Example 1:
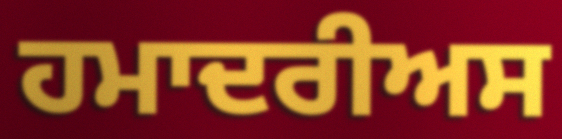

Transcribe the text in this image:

ਹਮਾਦਰੀਅਸ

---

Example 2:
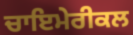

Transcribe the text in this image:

ਚਾਇਮੇਰੀਕਲ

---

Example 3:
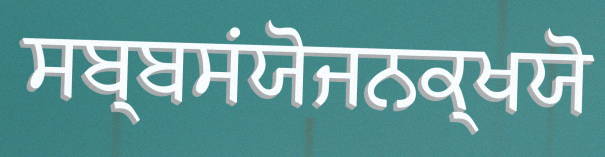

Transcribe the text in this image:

ਸਬ੍ਬਸਂਯੋਜਨਕ੍ਖਯੋ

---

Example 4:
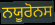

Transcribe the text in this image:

ਨਯੂਰੋਨਸ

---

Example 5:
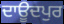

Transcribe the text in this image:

ਦਾਊਦਪੁਰ